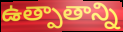
ఉత్పాతాన్ని